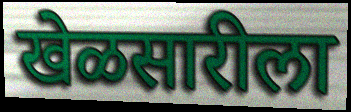
खेळसारीला